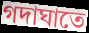
গদাঘাতে